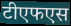
टीएफएस